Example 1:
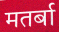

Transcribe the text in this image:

मतर्बा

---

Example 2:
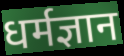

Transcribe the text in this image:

धर्मज्ञान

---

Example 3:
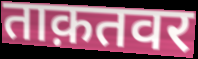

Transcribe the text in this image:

ताक़तवर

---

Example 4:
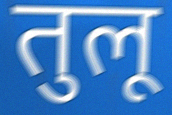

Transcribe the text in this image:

तुलू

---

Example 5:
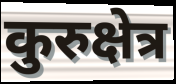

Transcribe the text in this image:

कुरुक्षेत्र